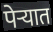
पेऱ्यात